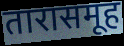
तारासमूह